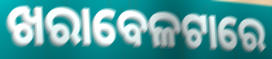
ଖରାବେଳଟାରେ